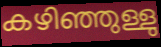
കഴിഞ്ഞുള്ളു